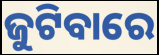
ଜୁଟିବାରେ